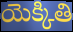
యెక్కితి